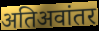
अतिअवांतर